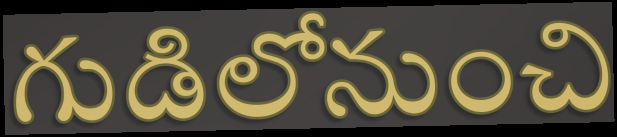
గుడిలోనుంచి